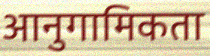
आनुगामिकता